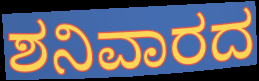
ಶನಿವಾರದ